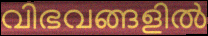
വിഭവങ്ങളിൽ